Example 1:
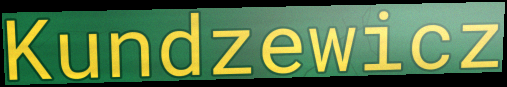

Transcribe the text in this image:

Kundzewicz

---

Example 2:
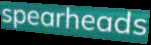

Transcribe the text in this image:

spearheads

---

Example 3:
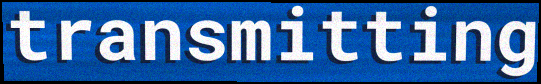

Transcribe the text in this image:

transmitting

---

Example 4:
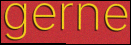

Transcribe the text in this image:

gerne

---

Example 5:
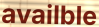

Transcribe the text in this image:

availble